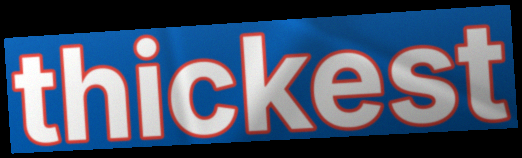
thickest